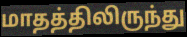
மாதத்திலிருந்து